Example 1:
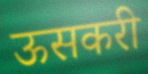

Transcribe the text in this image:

ऊसकरी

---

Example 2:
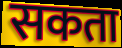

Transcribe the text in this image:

सकता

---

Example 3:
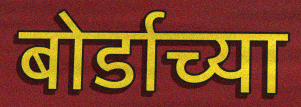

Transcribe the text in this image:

बोर्डाच्या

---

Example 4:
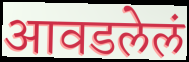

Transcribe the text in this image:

आवडलेलं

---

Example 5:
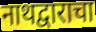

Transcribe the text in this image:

नाथद्वाराचा